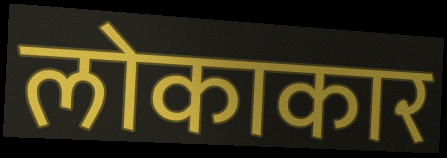
लोकाकार